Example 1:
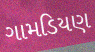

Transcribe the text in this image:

ગામડિયણ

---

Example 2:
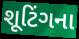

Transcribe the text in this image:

શૂટિંગના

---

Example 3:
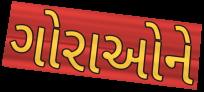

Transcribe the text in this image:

ગોરાઓને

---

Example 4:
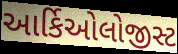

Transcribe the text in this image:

આર્કિઓલોજીસ્ટ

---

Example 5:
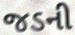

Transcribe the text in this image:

જડની